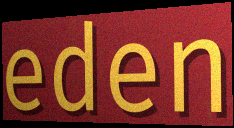
eden